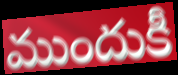
ముందుకీ